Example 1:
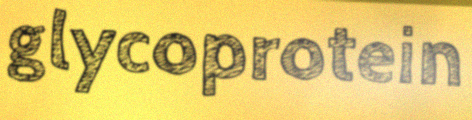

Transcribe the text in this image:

glycoprotein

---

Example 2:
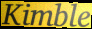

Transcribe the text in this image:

Kimble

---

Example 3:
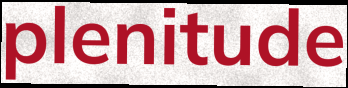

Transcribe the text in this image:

plenitude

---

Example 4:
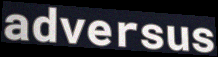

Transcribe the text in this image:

adversus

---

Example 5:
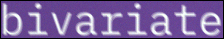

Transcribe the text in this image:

bivariate